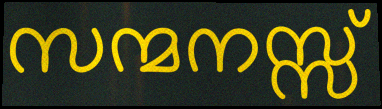
സന്മനസ്സ്